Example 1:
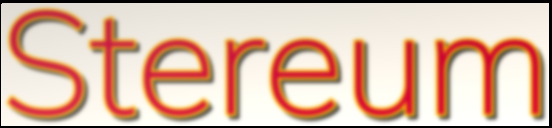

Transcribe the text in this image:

Stereum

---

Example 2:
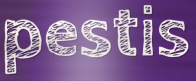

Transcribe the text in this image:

pestis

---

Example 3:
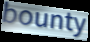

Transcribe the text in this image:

bounty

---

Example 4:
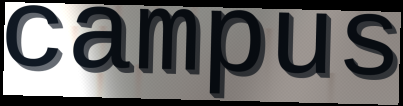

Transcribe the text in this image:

campus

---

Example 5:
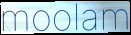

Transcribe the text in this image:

moolam